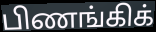
பிணங்கிக்